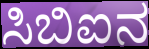
ಸಿಬಿಐನ